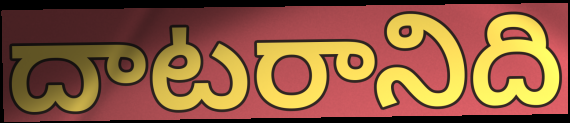
దాటరానిది